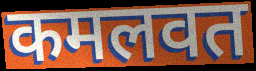
कमलवत